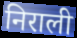
निराली